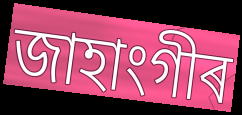
জাহাংগীৰ